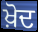
ਖ਼ੋਦ